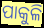
ପାକୁଳି